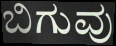
ಬಿಗುವು